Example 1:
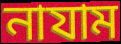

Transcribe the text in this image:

নাযাম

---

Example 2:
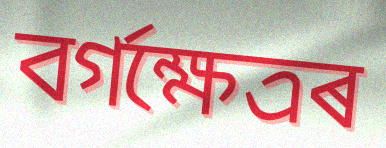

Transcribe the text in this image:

বৰ্গক্ষেত্ৰৰ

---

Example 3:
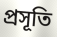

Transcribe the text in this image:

প্ৰসূতি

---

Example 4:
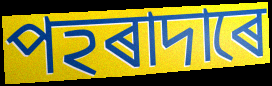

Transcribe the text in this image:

পহৰাদাৰে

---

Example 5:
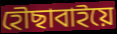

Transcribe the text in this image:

হৌছাবাইয়ে